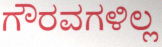
ಗೌರವಗಳಿಲ್ಲ